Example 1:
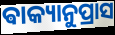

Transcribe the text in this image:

ଵାକ୍ୟାନୁପ୍ରାସ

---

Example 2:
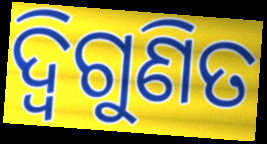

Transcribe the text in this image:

ଦ୍ଵିଗୁଣିତ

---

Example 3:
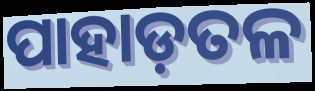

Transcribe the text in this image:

ପାହାଡ଼ତଳ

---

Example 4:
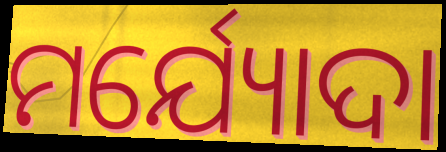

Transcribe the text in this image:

ମର୍ଯ୍ୟୋଦା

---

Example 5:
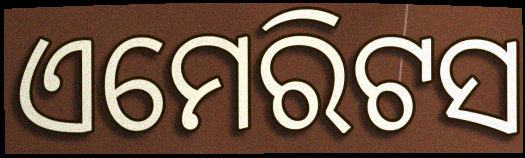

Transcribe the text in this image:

ଏମେରିଟସ